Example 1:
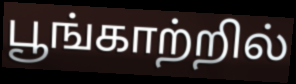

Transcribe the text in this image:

பூங்காற்றில்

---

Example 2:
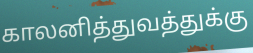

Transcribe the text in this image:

காலனித்துவத்துக்கு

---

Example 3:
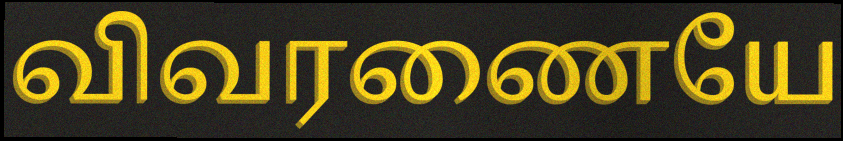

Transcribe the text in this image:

விவரணையே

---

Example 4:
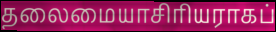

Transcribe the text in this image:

தலைமையாசிரியராகப்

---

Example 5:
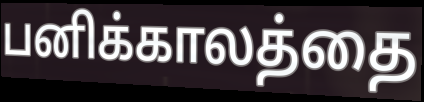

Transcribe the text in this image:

பனிக்காலத்தை